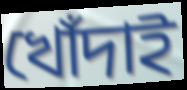
খোঁদাই